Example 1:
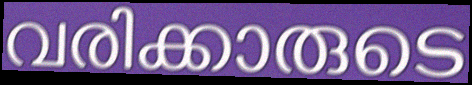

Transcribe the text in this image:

വരിക്കാരുടെ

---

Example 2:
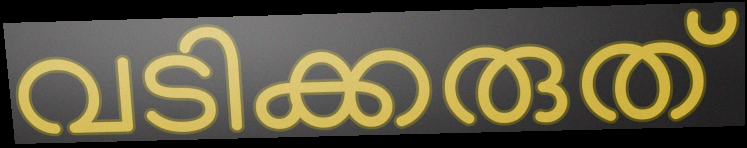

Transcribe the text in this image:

വടിക്കരുത്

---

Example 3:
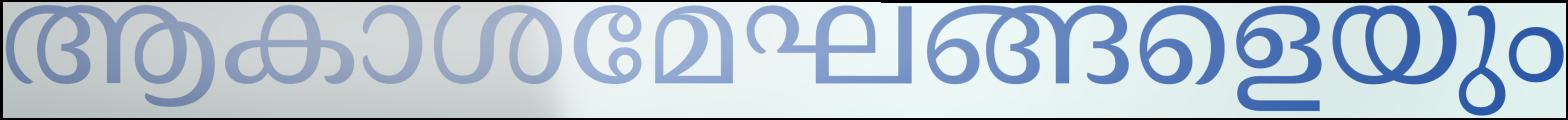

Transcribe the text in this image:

ആകാശമേഘങ്ങളെയും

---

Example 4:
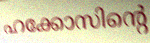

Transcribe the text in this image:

ഹക്കോസിന്റെ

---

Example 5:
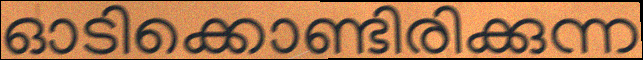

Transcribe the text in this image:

ഓടിക്കൊണ്ടിരിക്കുന്ന